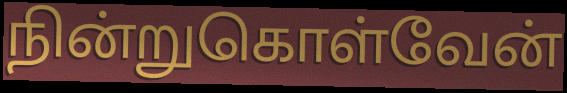
நின்றுகொள்வேன்